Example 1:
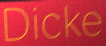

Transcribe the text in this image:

Dicke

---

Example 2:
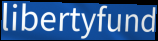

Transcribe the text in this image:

libertyfund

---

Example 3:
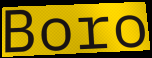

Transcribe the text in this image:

Boro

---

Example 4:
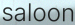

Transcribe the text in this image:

saloon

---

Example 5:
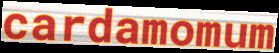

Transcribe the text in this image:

cardamomum